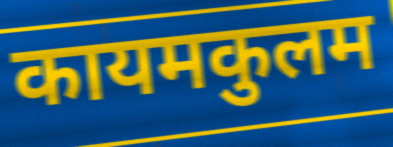
कायमकुलम